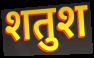
शतुश